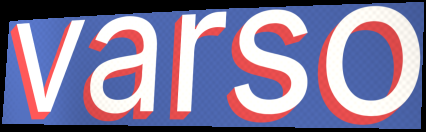
varso